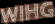
WIHG